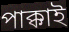
পাক্কাই